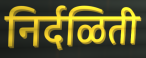
निर्दळिती